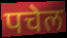
पचेल